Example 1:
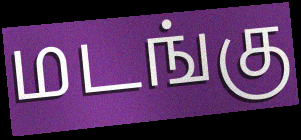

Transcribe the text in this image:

மடங்கு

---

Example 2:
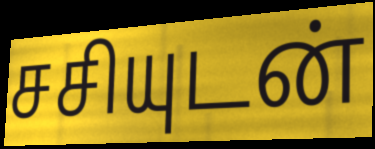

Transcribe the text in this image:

சசியுடன்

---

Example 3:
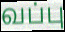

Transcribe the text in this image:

வப்பு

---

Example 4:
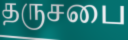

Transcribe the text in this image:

தருசபை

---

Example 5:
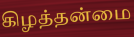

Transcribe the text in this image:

கிழத்தன்மை